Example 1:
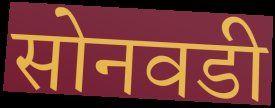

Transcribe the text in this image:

सोनवडी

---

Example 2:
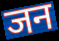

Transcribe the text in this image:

जन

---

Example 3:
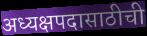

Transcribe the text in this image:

अध्यक्षपदासाठीची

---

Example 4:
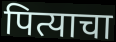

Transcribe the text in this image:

पित्याचा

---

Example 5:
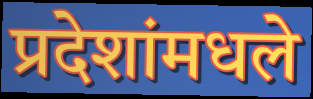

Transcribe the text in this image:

प्रदेशांमधले